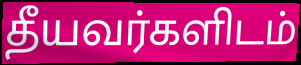
தீயவர்களிடம்